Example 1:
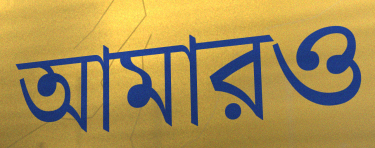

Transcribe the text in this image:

আমারও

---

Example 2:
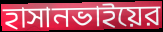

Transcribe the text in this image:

হাসানভাইয়ের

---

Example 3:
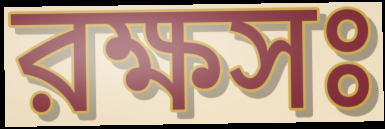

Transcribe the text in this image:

রক্ষসঃ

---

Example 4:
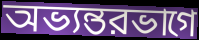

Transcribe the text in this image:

অভ্যন্তরভাগে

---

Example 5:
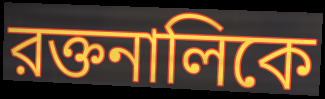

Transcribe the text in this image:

রক্তনালিকে